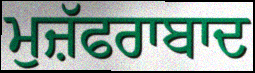
ਮੁਜ਼ੱਫਰਾਬਾਦ